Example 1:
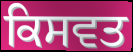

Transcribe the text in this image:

ਕਿਸਵਤ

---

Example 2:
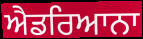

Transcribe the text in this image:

ਐਡਰਿਆਨਾ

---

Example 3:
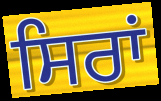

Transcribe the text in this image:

ਸਿਰਾਂ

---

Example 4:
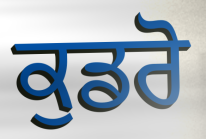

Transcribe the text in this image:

ਕੁਡਰੋ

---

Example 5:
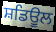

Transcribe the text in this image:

ਸ਼ਡਿਊਲ